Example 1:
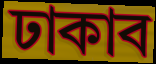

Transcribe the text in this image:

ঢাকাব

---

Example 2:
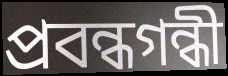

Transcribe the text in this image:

প্রবন্ধগন্ধী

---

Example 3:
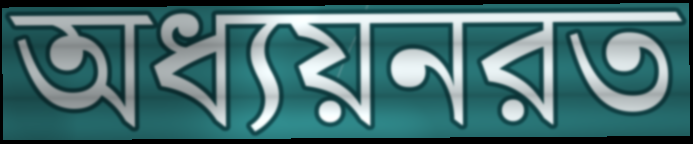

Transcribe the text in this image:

অধ্যয়নরত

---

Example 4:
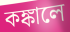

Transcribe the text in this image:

কঙ্কালে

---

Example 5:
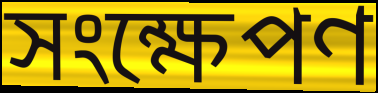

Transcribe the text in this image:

সংক্ষেপণ